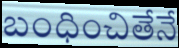
బంధించితేనే